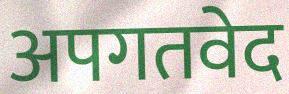
अपगतवेद